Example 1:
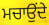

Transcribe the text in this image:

ਮਚਾਉਂਦੇ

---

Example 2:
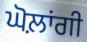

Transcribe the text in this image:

ਘੋਲ਼ਾਂਗੀ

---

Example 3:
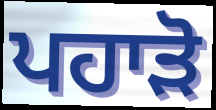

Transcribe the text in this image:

ਪਹਾੜੋ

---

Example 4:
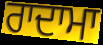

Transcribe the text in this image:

ਰਾਦਾਮਾ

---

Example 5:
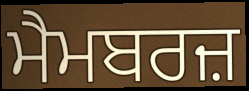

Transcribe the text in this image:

ਮੈਮਬਰਜ਼